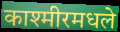
काश्‍मीरमधले